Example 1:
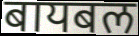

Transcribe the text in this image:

बायबल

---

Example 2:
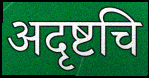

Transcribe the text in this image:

अदृष्टचि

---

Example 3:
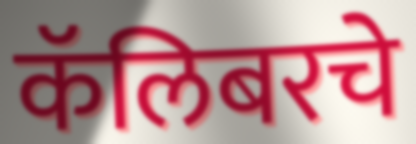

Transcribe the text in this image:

कॅलिबरचे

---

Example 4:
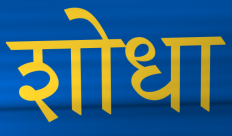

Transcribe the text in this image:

शोधा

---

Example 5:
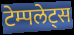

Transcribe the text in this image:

टेम्पलेट्स